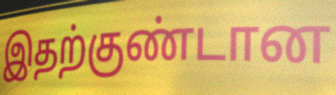
இதற்குண்டான